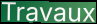
Travaux